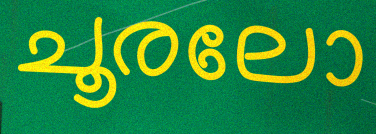
ചൂരലോ